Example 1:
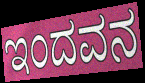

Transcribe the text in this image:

ಇಂದವನ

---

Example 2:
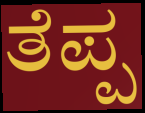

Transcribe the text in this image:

ತೆಪ್ಪ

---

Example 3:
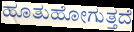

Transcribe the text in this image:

ಹೂತುಹೋಗುತ್ತದೆ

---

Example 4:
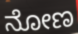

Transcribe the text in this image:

ನೋಣ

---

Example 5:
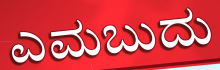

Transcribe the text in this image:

ಎಮಬುದು